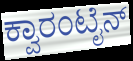
ಕ್ವಾರಂಟೈನ್